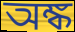
অঙ্ক